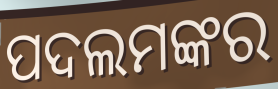
ପଦଲମଙ୍କର